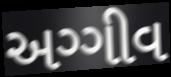
અગ્ગીવ